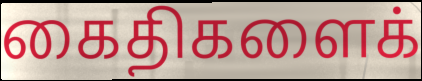
கைதிகளைக்